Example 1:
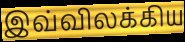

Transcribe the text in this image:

இவ்விலக்கிய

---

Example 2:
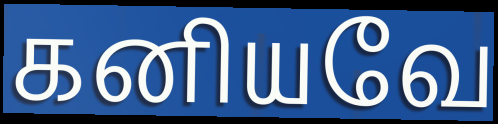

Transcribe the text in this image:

கனியவே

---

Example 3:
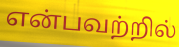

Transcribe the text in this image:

என்பவற்றில்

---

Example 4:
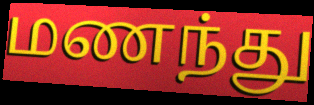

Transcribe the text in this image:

மணந்து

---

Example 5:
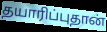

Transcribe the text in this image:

தயாரிப்புதான்